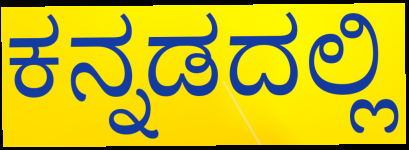
ಕನ್ನಡದಲ್ಲಿ